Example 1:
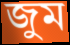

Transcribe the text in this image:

জুম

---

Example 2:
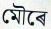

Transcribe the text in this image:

মৌৰে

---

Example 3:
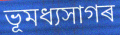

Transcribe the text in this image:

ভূমধ্যসাগৰ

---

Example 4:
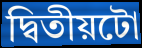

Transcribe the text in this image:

দ্বিতীয়টো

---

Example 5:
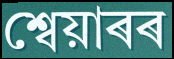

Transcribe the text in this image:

শ্বেয়াৰৰ